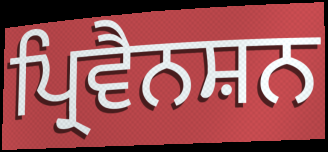
ਪ੍ਰਿਵੈਨਸ਼ਨ